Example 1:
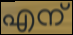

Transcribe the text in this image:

എന്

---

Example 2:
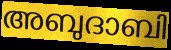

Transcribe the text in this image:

അബുദാബി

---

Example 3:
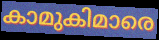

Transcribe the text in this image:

കാമുകിമാരെ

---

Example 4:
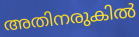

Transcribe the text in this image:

അതിനരുകിൽ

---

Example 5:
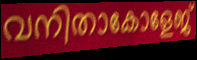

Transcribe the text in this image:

വനിതാകോളേജ്